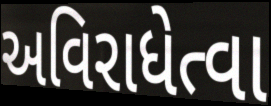
અવિરાધેત્વા